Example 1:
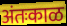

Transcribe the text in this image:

अंतःकाळ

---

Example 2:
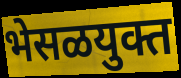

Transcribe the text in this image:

भेसळयुक्त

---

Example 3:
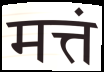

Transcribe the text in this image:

मत्तं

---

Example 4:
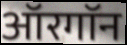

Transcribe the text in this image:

ऑरगॉन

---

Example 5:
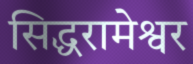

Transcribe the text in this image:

सिद्धरामेश्वर